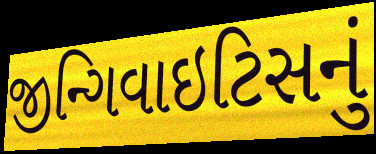
જીન્ગિવાઇટિસનું